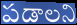
పడాలని